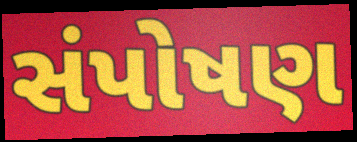
સંપોષણ